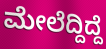
ಮೇಲೆದ್ದಿದ್ದೆ